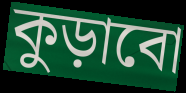
কুড়াবো